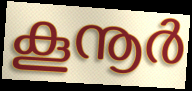
കൂനൂർ